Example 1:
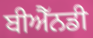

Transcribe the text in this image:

ਬੀਐੱਨਡੀ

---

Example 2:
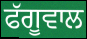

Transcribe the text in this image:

ਫੱਗੂਵਾਲ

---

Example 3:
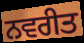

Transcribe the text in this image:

ਨਵਰੀਤ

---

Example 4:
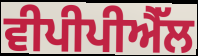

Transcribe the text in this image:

ਵੀਪੀਪੀਐੱਲ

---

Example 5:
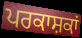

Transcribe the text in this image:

ਪਰਕਾਸ਼ਕਾਂ